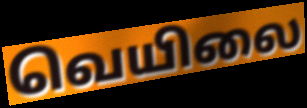
வெயிலை